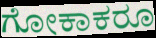
ಗೋಕಾಕರೂ